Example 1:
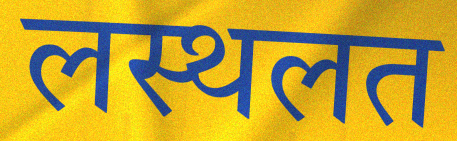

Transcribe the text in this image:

लस्थलत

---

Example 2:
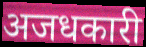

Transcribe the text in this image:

अजधकारी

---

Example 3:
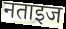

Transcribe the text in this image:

नताइज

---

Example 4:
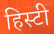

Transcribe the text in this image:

हिस्टी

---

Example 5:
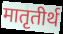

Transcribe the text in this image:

मातृतीर्थ